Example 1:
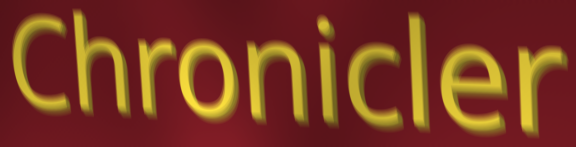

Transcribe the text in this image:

Chronicler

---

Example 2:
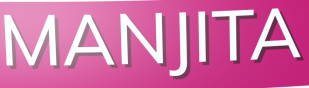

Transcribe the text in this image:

MANJITA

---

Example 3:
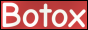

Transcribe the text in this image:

Botox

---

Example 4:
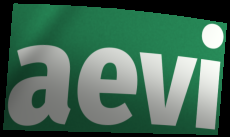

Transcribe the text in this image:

aevi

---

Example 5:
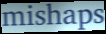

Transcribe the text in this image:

mishaps